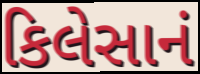
કિલેસાનં